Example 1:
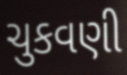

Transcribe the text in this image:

ચુકવણી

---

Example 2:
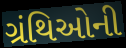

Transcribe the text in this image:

ગ્રંથિઓની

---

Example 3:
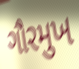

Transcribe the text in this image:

ગૌરમુખ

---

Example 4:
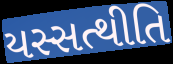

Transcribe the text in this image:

યસ્સત્થીતિ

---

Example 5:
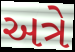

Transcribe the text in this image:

અત્રે